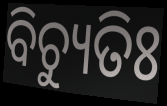
ବିଚ୍ୟୁତିଃ